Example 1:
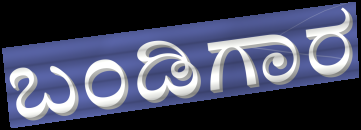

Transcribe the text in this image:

ಬಂಡಿಗಾರ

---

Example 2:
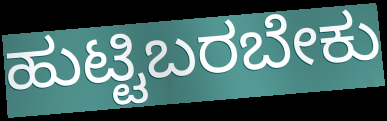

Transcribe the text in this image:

ಹುಟ್ಟಿಬರಬೇಕು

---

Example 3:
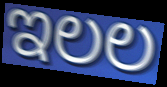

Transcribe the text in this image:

ಇಲಲ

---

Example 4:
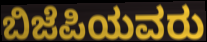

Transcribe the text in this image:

ಬಿಜೆಪಿಯವರು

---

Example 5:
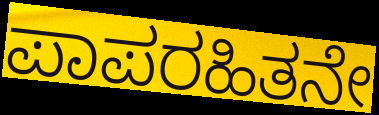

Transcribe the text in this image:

ಪಾಪರಹಿತನೇ